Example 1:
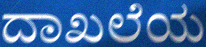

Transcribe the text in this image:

ದಾಖಲೆಯ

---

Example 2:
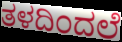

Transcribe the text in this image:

ತಳದಿಂದಲೆ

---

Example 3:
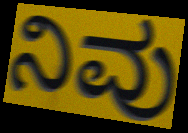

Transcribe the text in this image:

ನಿವು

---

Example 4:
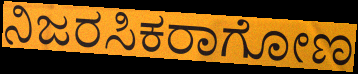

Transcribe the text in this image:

ನಿಜರಸಿಕರಾಗೋಣ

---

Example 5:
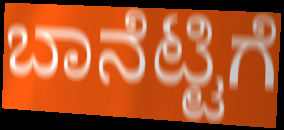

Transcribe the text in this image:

ಬಾನೆಟ್ಟಿಗೆ